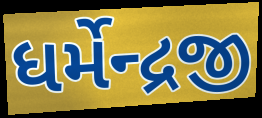
ધર્મેન્દ્રજી